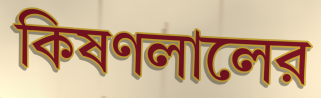
কিষণলালের